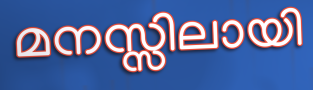
മനസ്സിലായി